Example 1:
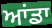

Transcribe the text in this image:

ਆਂਡਾ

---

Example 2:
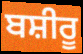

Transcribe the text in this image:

ਬਸ਼ੀਰੂ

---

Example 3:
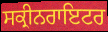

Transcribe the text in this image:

ਸਕ੍ਰੀਨਰਾਇਟਰ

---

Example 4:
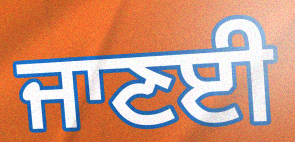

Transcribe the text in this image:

ਜਾਣਈ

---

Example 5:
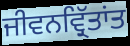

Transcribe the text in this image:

ਜੀਵਨਵ੍ਰਿੱਤਾਂਤ